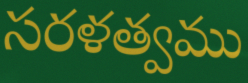
సరళత్వము